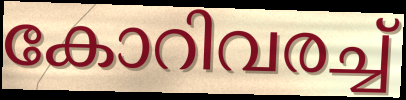
കോറിവരച്ച്